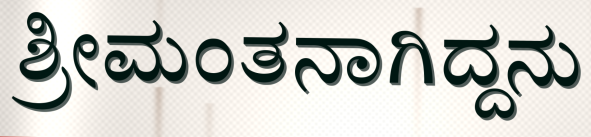
ಶ್ರೀಮಂತನಾಗಿದ್ದನು